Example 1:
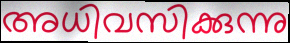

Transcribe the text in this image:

അധിവസിക്കുന്നു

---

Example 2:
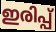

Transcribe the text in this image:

ഇരിപ്പ്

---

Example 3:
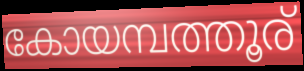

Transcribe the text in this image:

കോയമ്പത്തൂര്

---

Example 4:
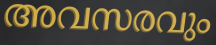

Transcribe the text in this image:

അവസരവും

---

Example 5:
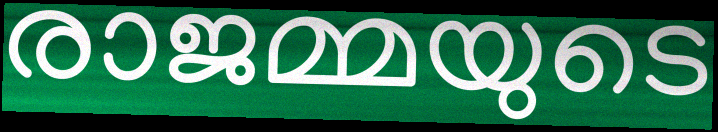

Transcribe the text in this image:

രാജമ്മയുടെ